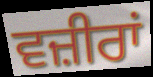
ਵਜ਼ੀਰਾਂ